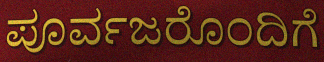
ಪೂರ್ವಜರೊಂದಿಗೆ